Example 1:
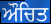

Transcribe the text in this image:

ਔਚਿਤ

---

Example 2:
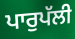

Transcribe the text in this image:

ਪਾਰੁਪੱਲੀ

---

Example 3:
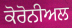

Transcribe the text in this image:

ਕੋਰੋਨੀਅਲ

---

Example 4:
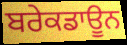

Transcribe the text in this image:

ਬਰੇਕਡਾਊਨ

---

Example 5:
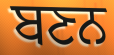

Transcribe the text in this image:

ਬਣਨ